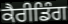
ਕੈਰੀਡਿੰਗ